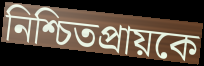
নিশ্চিতপ্রায়কে